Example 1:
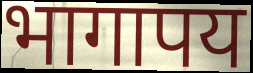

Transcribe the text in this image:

भागापय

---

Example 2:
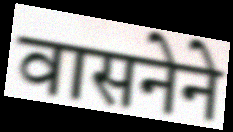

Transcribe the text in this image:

वासनेने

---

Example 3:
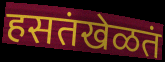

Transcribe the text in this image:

हसतंखेळतं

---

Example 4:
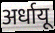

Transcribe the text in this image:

अर्धायू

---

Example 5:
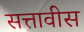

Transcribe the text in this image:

सत्तावीस